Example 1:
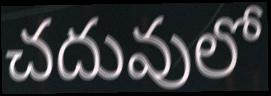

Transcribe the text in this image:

చదువులో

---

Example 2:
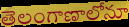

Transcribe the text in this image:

తెలంగాణాలోనూ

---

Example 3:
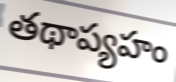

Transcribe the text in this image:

తథాప్యహం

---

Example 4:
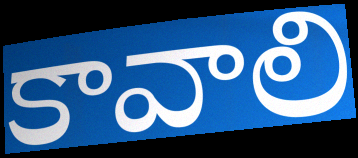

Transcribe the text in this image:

కావాలి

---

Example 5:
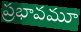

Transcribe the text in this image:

ప్రభావమూ